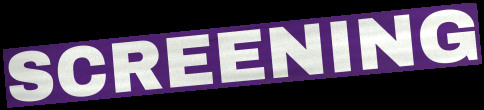
SCREENING